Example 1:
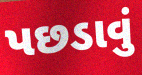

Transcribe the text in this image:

પછડાવું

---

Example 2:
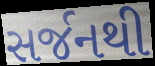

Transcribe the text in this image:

સર્જનથી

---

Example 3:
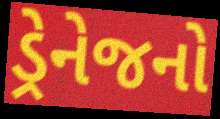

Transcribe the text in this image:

ડ્રેનેજનો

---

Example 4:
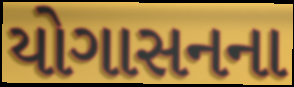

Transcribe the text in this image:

યોગાસનના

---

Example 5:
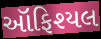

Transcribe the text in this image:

ઑફિશ્યલ